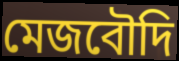
মেজবৌদি